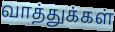
வாத்துக்கள்